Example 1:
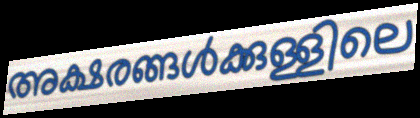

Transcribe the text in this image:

അക്ഷരങ്ങൾക്കുള്ളിലെ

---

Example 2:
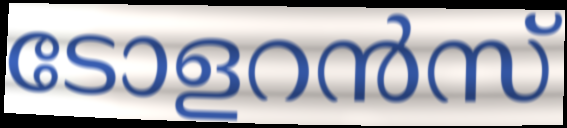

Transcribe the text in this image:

ടോളറൻസ്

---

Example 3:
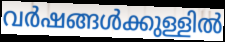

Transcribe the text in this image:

വർഷങ്ങൾക്കുള്ളിൽ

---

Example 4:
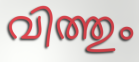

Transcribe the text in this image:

വിത്തും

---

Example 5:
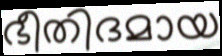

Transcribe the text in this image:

ഭീതിദമായ